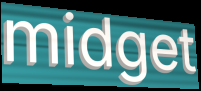
midget